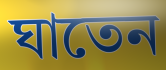
ঘাতেন